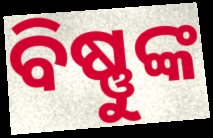
ବିଷ୍ଣୁଙ୍କ